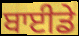
ਬਾਈਡੇ